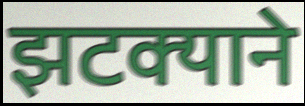
झटक्याने